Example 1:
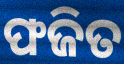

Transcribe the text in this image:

ଫଜିତ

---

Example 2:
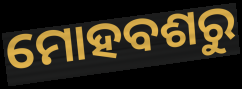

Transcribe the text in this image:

ମୋହବଶରୁ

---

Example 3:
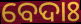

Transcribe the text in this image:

ବେଦାଃ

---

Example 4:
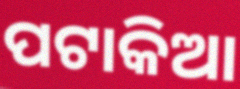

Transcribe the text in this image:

ପଟାକିଆ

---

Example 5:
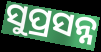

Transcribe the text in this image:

ସୁପ୍ରସନ୍ନ